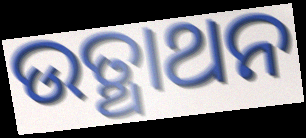
ଉତ୍ଥାଥନ